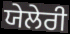
ਯੇਲੇਰੀ